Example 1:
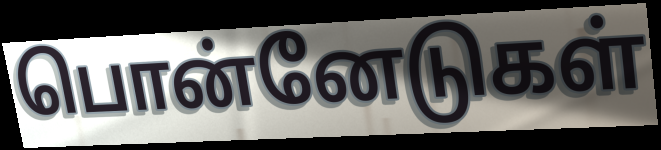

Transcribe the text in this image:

பொன்னேடுகள்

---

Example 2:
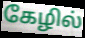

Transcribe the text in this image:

கேழில்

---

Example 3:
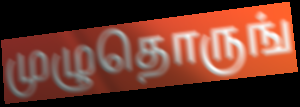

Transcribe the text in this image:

முழுதொருங்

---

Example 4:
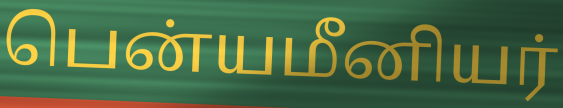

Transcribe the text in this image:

பென்யமீனியர்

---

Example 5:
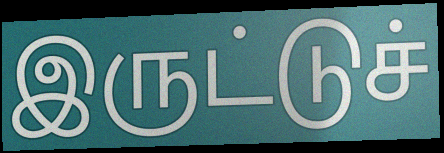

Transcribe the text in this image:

இருட்டுச்